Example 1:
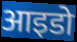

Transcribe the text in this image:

आइडो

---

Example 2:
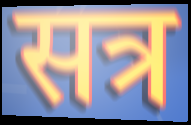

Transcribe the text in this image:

सत्र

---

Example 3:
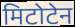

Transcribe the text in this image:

मिटोटेन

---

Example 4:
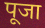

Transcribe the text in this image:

पूजा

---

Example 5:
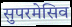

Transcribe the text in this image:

सुपरमेसिव